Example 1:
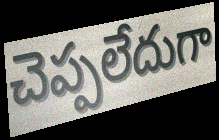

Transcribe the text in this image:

చెప్పలేదుగా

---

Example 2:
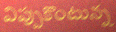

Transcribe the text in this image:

విప్పుకొంటున్న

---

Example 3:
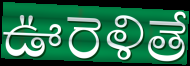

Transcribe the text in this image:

ఊరెళితే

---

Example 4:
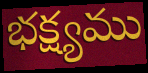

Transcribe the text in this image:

భక్ష్యము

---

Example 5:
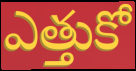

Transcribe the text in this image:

ఎత్తుకో